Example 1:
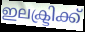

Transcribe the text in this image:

ഇലക്ട്രിക്ക്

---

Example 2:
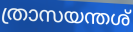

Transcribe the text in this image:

ത്രാസയന്തശ്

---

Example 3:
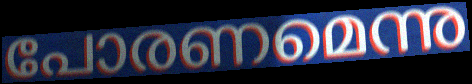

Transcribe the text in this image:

പോരണമെന്നു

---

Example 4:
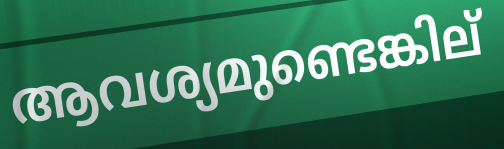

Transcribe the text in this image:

ആവശ്യമുണ്ടെങ്കില്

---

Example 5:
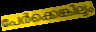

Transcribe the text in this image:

പേർക്കെങ്കിലും